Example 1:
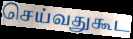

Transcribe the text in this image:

செய்வதுகூட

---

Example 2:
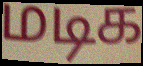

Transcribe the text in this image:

மடிக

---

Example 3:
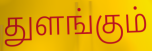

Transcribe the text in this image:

துளங்கும்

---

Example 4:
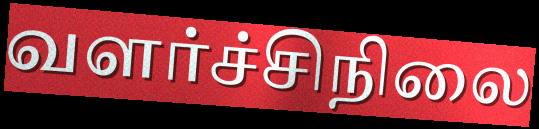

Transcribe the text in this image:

வளர்ச்சிநிலை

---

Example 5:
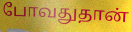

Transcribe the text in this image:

போவதுதான்